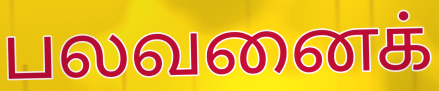
பலவனைக்